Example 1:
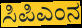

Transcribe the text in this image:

ಸಿಪಿಎಂನ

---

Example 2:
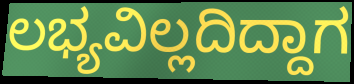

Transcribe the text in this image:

ಲಭ್ಯವಿಲ್ಲದಿದ್ದಾಗ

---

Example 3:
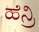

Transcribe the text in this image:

ಹೆನ್ರಿ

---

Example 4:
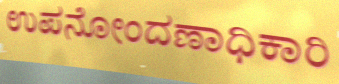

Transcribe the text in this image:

ಉಪನೋಂದಣಾಧಿಕಾರಿ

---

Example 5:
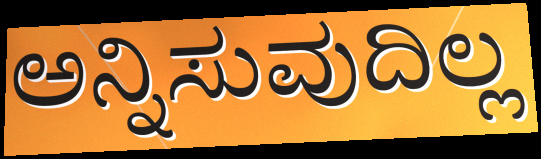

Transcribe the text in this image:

ಅನ್ನಿಸುವುದಿಲ್ಲ